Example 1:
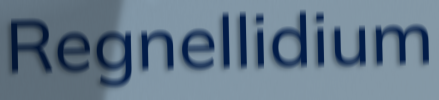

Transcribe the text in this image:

Regnellidium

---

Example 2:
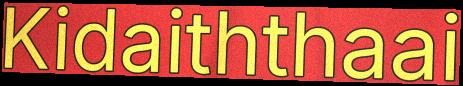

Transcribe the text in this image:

Kidaiththaai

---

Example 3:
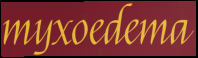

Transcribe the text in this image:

myxoedema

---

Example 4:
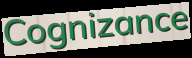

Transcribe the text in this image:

Cognizance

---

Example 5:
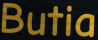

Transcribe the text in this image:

Butia